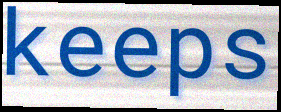
keeps